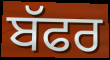
ਬੱਫਰ